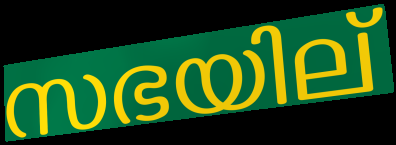
സഭയില്